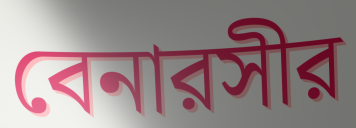
বেনারসীর